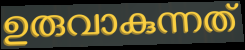
ഉരുവാകുന്നത്